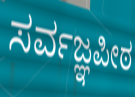
ಸರ್ವಜ್ಞಪೀಠ